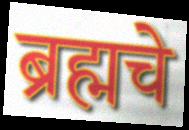
ब्रह्मचे